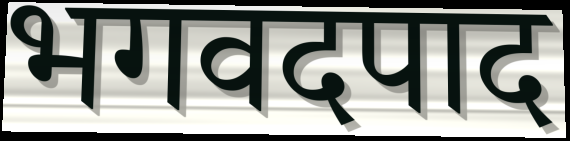
भगवदपाद